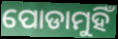
ପୋଡାମୁହିଁ